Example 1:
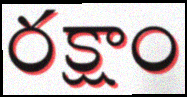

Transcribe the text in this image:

రక్షాం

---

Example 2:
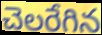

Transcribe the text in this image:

చెలరేగిన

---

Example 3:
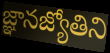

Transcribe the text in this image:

జ్ఞానజ్యోతిని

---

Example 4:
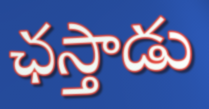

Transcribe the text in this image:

ఛస్తాడు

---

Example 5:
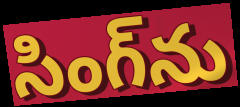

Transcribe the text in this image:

సింగ్‌ను